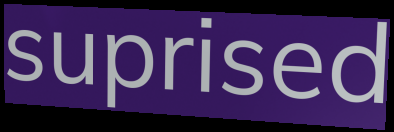
suprised